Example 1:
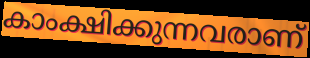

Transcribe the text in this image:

കാംക്ഷിക്കുന്നവരാണ്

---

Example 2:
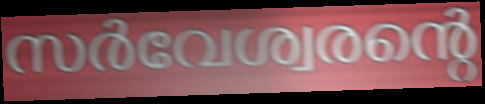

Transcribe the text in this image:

സർവേശ്വരന്റെ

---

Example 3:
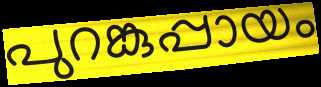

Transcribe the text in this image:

പുറങ്കുപ്പായം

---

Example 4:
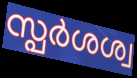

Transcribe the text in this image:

സ്പർശശ്വ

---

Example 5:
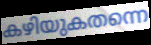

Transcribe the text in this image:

കഴിയുകതന്നെ